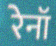
रेनॉ